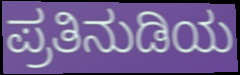
ಪ್ರತಿನುಡಿಯ